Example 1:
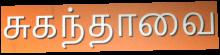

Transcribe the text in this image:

சுகந்தாவை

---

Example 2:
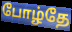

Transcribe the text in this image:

போழ்தே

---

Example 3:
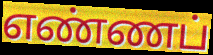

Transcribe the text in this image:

எண்ணப்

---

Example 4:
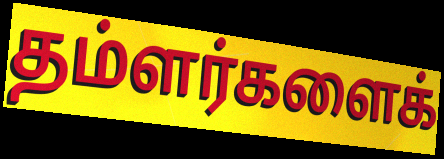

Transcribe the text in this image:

தம்ளர்களைக்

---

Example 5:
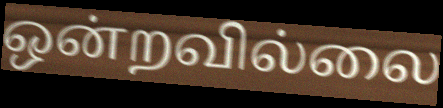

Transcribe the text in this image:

ஒன்றவில்லை